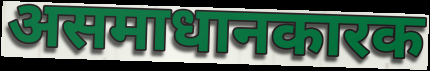
असमाधानकारक